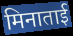
मिनाताई